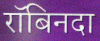
रॉबिनदा